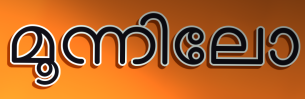
മൂന്നിലോ